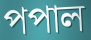
পপাল